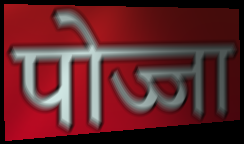
पोज्जा